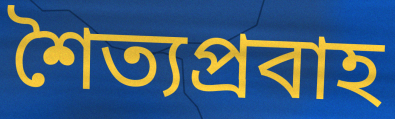
শৈত্যপ্রবাহ